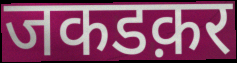
जकडक़र